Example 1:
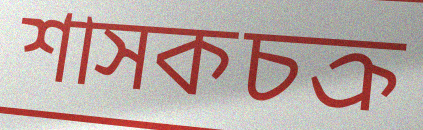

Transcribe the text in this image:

শাসকচক্র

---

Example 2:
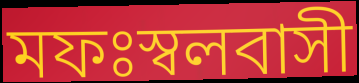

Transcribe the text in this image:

মফঃস্বলবাসী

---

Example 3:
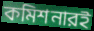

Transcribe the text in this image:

কমিশনারই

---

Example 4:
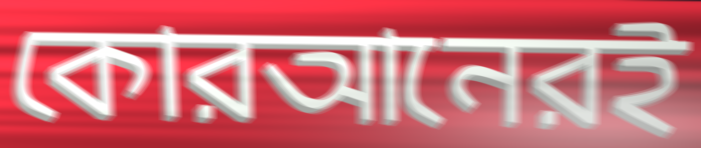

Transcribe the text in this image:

কোরআনেরই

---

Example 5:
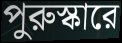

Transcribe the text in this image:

পুরুস্কারে